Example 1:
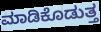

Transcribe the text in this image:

ಮಾಡಿಕೊಡುತ್ತ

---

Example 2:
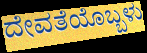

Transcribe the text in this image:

ದೇವತೆಯೊಬ್ಬಳು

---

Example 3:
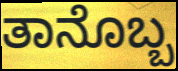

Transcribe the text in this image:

ತಾನೊಬ್ಬ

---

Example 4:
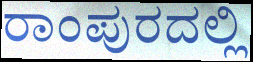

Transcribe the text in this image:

ರಾಂಪುರದಲ್ಲಿ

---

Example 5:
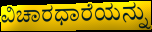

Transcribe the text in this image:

ವಿಚಾರಧಾರೆಯನ್ನು